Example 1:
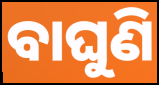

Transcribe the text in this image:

ବାଘୁଣି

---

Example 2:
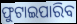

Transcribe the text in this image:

ଫୁଟାଇପାରିବ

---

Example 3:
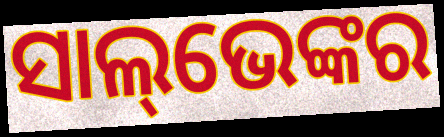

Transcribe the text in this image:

ସାଲ୍‌ଭେଙ୍କର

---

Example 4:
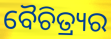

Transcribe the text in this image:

ବୈଚିତ୍ର୍ୟର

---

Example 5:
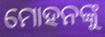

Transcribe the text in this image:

ମୋହନଙ୍କୁ